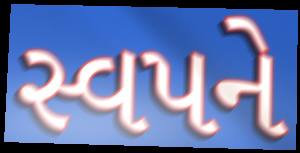
સ્વપને